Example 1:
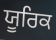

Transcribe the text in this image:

ਯੂਰਿਕ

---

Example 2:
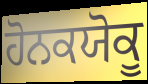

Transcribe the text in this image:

ਹੋਨਕਯੋਕੂ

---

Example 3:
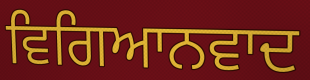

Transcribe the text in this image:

ਵਿਗਿਆਨਵਾਦ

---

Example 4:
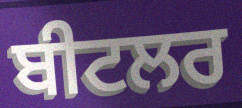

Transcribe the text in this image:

ਬੀਟਲਰ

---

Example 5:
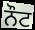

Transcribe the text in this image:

ਨੌਟ